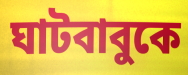
ঘাটবাবুকে